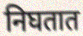
निघतात